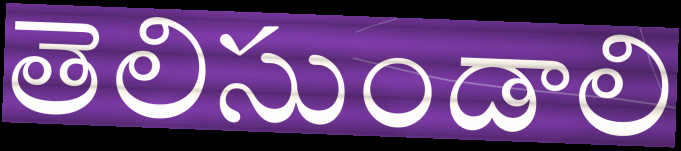
తెలిసుండాలి